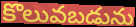
కొలువబడును